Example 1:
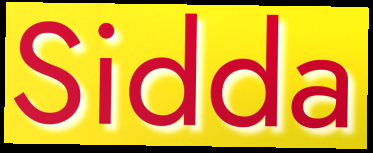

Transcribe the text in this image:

Sidda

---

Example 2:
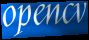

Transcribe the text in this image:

opencv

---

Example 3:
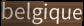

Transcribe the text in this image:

belgique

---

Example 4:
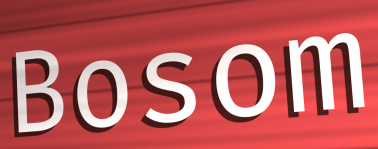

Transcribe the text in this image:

Bosom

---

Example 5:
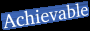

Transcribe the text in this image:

Achievable